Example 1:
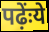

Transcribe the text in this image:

पढ़ेंःये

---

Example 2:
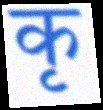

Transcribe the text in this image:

कृ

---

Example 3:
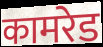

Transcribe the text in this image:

कामरेड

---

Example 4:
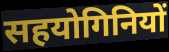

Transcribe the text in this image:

सहयोगिनियों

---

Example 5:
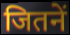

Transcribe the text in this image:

जितनें